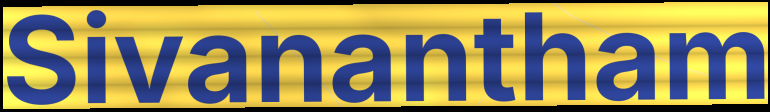
Sivanantham